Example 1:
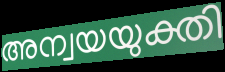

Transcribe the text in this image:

അന്വയയുക്തി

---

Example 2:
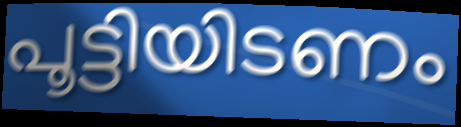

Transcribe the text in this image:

പൂട്ടിയിടണം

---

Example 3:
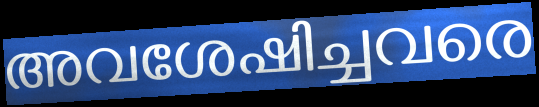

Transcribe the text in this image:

അവശേഷിച്ചവരെ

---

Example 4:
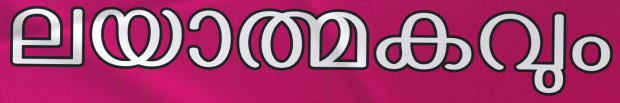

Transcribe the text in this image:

ലയാത്മകവും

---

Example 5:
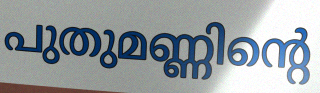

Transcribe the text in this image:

പുതുമണ്ണിന്റെ